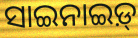
ସାଇନାଇଡ଼୍